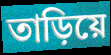
তাড়িয়ে